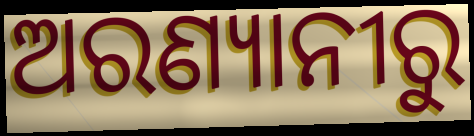
ଅରଣ୍ୟାନୀରୁ